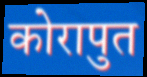
कोरापुत